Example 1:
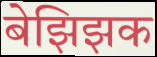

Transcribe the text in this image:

बेझिझक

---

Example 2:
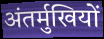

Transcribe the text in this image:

अंतर्मुखियों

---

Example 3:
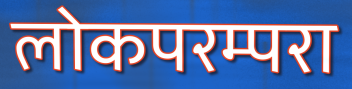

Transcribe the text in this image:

लोकपरम्परा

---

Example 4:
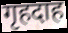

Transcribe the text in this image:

गृहदाह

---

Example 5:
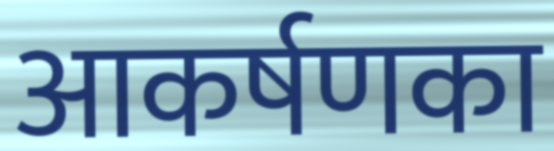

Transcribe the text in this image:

आकर्षणका